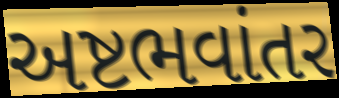
અષ્ટભવાંતર